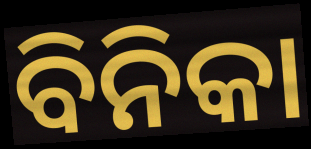
ବିନିକା